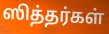
ஸித்தர்கள்